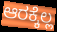
ಆರಕ್ಕೆಲ್ಲ